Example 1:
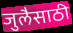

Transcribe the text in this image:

जुलैसाठी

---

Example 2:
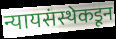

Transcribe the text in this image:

न्यायसंस्थेकडून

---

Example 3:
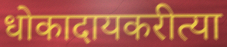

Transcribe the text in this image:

धोकादायकरीत्या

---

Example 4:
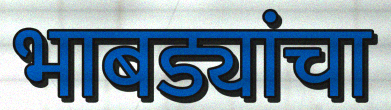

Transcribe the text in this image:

भाबड्यांचा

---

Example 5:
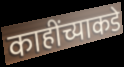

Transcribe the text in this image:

काहींच्याकडे